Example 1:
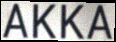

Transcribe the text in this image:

AKKA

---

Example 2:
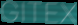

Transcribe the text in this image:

GITEX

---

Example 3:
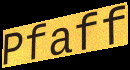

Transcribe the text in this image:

Pfaff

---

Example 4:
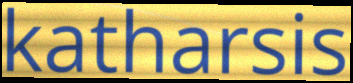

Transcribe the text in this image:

katharsis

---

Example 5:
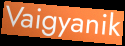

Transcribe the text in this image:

Vaigyanik